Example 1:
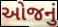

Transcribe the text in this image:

ઓજનું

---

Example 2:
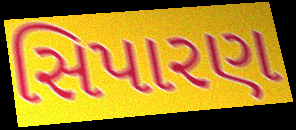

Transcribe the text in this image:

સિપારણ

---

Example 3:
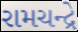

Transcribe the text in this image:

રામચન્દ્રે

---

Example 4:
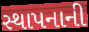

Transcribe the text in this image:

સ્થાપનાની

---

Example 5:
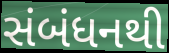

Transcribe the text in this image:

સંબંધનથી